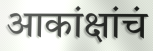
आकांक्षांचं